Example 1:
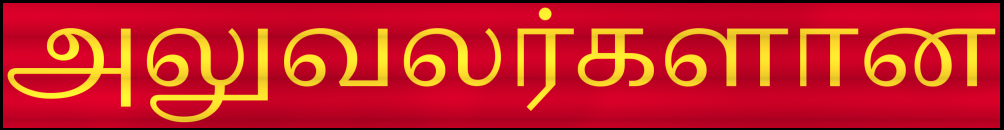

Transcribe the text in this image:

அலுவலர்களான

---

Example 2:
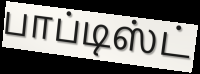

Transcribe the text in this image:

பாப்டிஸ்ட்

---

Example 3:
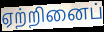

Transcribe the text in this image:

ஏற்றினைப்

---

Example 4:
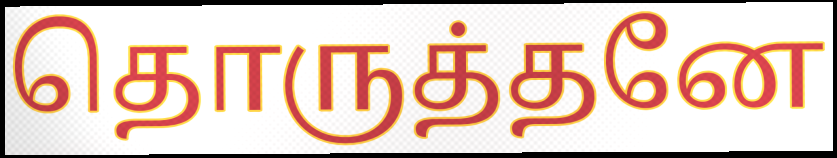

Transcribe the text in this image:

தொருத்தனே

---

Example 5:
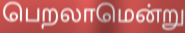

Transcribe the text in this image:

பெறலாமென்று